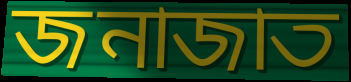
জনাজাত